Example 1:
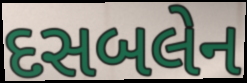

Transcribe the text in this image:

દસબલેન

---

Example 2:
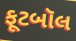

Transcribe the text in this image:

ફૂટબૉલ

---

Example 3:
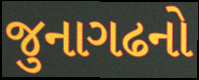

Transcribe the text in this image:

જુનાગઢનો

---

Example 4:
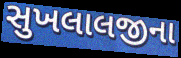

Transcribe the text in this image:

સુખલાલજીના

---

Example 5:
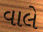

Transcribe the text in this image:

વાલે